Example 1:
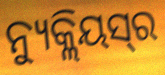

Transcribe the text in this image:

ନ୍ୟୁକ୍ଲିୟସ୍‌ର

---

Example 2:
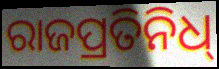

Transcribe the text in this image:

ରାଜପ୍ରତିନିଧ୍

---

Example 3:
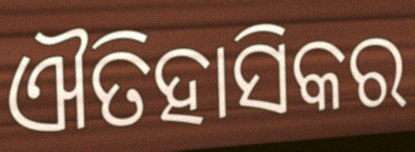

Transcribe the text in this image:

ଐତିହାସିକର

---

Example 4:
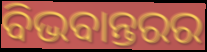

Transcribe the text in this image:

ବିଭବାନ୍ତରର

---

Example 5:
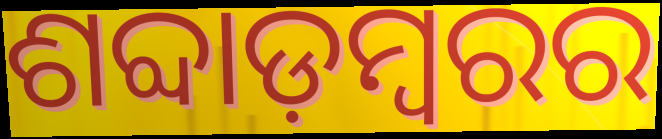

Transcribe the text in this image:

ଶବ୍ଦାଡ଼ମ୍ବରର